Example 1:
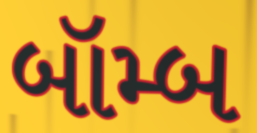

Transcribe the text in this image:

બૉમ્બ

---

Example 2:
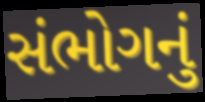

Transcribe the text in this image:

સંભોગનું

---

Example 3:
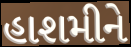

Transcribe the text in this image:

હાશમીને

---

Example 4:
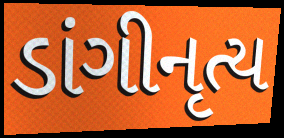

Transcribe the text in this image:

ડાંગીનૃત્ય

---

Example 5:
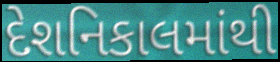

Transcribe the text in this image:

દેશનિકાલમાંથી